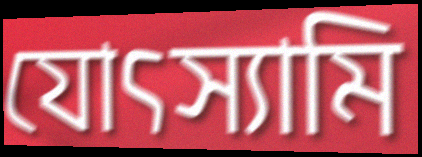
যোৎস্যামি